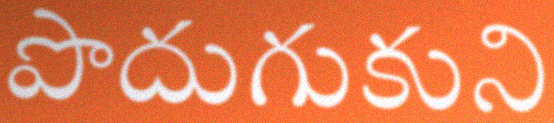
పొదుగుకుని